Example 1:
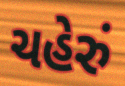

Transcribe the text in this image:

ચહેરું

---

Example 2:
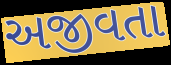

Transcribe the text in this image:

અજીવતા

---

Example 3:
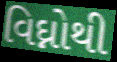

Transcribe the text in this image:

વિઘ્નોથી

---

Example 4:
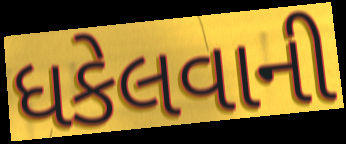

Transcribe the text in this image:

ધકેલવાની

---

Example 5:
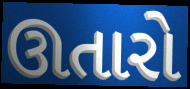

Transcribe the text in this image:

ઊતારો